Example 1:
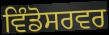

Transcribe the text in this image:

ਵਿੰਡੋਸਰਵਰ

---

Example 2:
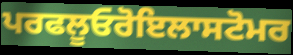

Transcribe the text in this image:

ਪਰਫਲੂਓਰੋਇਲਾਸਟੋਮਰ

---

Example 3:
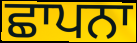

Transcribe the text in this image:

ਛਾਪਨਾ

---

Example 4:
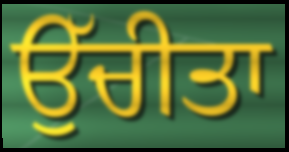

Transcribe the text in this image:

ਉੱਚੀਤਾ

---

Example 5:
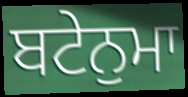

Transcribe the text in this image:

ਬਟੇਨੁਮਾ